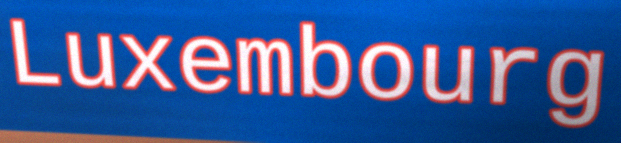
Luxembourg